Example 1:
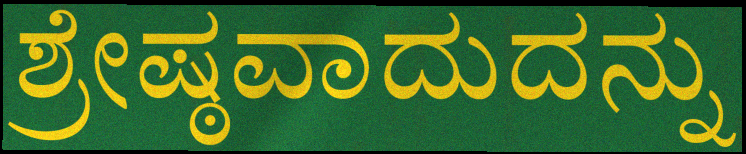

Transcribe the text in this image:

ಶ್ರೇಷ್ಠವಾದುದನ್ನು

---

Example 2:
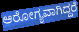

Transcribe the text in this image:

ಆರೋಗ್ಯವಾಗಿದ್ದರೆ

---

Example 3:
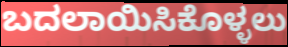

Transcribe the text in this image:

ಬದಲಾಯಿಸಿಕೊಳ್ಳಲು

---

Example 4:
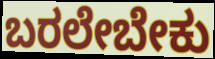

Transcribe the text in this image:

ಬರಲೇಬೇಕು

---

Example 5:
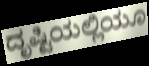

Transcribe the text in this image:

ದೃಷ್ಟಿಯಲ್ಲಿಯೂ